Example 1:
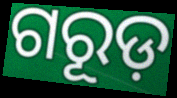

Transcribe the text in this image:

ଗରୂଡ଼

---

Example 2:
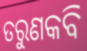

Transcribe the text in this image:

ତରୁଣକବି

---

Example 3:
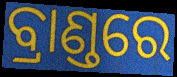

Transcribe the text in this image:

ବ୍ରାଣ୍ଡରେ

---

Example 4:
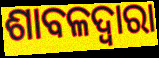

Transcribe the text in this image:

ଶାବଳଦ୍ୱାରା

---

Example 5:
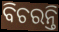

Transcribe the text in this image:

ବିଚରନ୍ତି